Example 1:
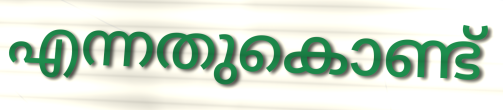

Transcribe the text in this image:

എന്നതുകൊണ്ട്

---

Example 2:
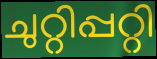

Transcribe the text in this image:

ചുറ്റിപ്പറ്റി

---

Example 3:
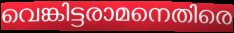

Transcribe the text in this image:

വെങ്കിട്ടരാമനെതിരെ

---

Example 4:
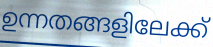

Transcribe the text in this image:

ഉന്നതങ്ങളിലേക്ക്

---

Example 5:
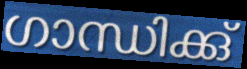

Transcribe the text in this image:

ഗാന്ധിക്കു്